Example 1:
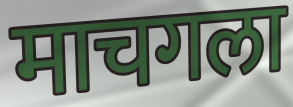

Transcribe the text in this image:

माचगला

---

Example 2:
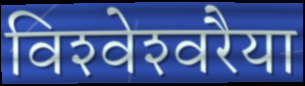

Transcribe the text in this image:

विश्वेश्वरैया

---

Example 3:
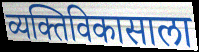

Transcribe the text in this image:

व्यक्तिविकासाला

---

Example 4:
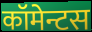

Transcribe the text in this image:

कॉमेन्टस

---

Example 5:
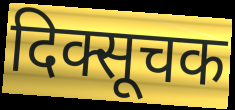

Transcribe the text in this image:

दिक्सूचक